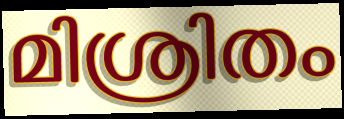
മിശ്രിതം